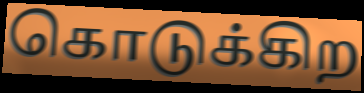
கொடுக்கிற